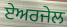
ਏਅਰਜੇਲ